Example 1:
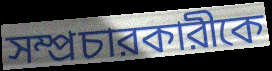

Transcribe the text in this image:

সম্প্রচারকারীকে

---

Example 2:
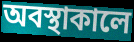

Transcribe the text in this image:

অবস্থাকালে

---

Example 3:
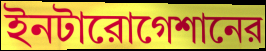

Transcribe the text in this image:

ইনটারোগেশানের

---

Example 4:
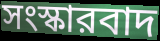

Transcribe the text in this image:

সংস্কারবাদ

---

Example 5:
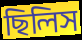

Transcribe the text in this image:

ছিলিস